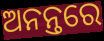
ଅନନ୍ତରେ